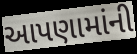
આપણામાંની